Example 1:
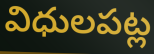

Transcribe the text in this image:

విధులపట్ల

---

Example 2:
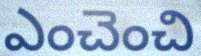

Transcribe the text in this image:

ఎంచెంచి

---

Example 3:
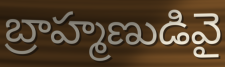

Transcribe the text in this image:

బ్రాహ్మణుడివై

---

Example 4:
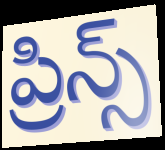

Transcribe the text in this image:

ప్రిన్స్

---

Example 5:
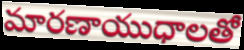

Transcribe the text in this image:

మారణాయుధాలతో